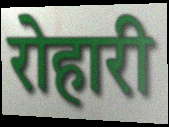
रोहारी